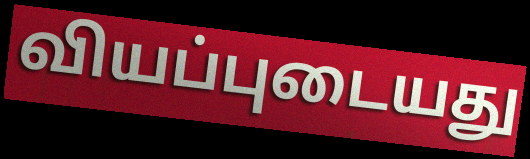
வியப்புடையது